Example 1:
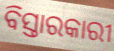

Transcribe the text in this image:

ବିସ୍ତାରକାରୀ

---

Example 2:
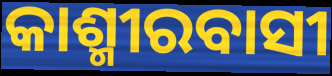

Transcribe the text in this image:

କାଶ୍ମୀରବାସୀ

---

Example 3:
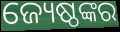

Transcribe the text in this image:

ଜ୍ୟେଷ୍ଠଙ୍କର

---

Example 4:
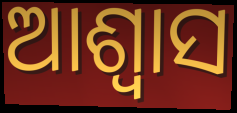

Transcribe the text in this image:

ଆଶ୍ୱାସ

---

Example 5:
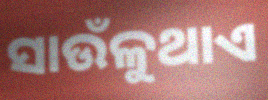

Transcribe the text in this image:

ସାଉଁଳୁଥାଏ